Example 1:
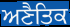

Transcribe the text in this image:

ਅਣੈਤਿਕ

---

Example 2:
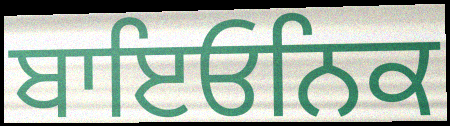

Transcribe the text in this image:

ਬਾਇਓਨਿਕ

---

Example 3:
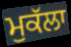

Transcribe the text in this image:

ਮੁਕੱਲਾ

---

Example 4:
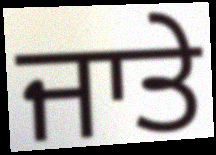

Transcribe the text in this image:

ਜਾਤੇ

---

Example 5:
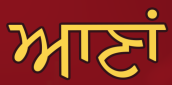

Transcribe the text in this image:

ਆਣਾਂ